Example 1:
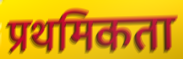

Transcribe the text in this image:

प्रथमिकता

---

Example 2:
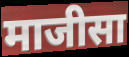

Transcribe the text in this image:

माजीसा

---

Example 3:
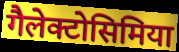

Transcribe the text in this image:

गैलेक्टोसिमिया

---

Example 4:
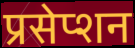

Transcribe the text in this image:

प्रसेप्शन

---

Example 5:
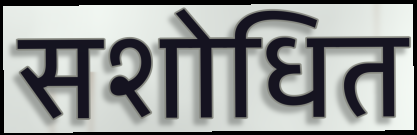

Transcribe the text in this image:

सशोधित